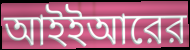
আইইআরের